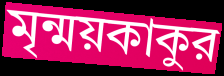
মৃন্ময়কাকুর